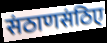
संठाणसंठिए